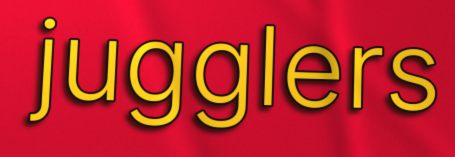
jugglers